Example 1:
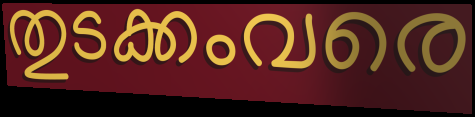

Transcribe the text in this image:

തുടക്കംവരെ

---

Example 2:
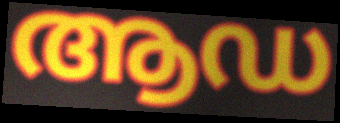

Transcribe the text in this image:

ആഡ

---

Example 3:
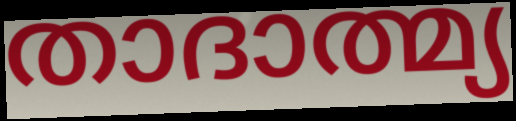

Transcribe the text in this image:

താദാത്മ്യ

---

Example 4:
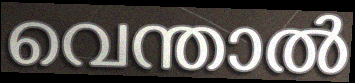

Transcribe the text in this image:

വെന്താൽ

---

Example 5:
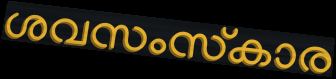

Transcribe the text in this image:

ശവസംസ്‌കാര